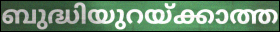
ബുദ്ധിയുറയ്ക്കാത്ത